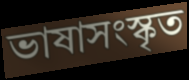
ভাষাসংস্কৃত